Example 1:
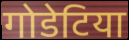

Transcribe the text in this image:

गोडेटिया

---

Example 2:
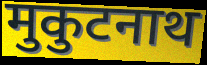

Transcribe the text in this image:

मुकुटनाथ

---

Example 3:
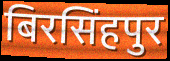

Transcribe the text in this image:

बिरसिंहपुर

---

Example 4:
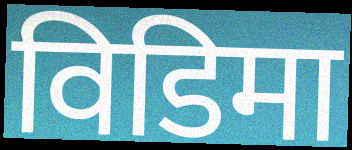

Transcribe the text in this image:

विडिमा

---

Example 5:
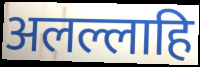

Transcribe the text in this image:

अलल्लाहि